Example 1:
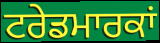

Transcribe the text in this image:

ਟਰੇਡਮਾਰਕਾਂ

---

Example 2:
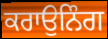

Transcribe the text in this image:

ਕਰਾਉਨਿੰਗ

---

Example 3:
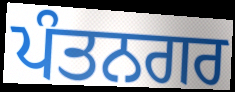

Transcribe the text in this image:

ਪੰਤਨਗਰ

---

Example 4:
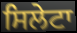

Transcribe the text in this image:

ਸਿਲੇਟਾ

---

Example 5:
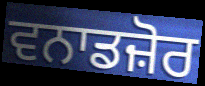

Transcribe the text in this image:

ਵਨਾਡਜ਼ੋਰ